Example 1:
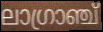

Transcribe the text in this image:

ലാഗ്രാഞ്ച്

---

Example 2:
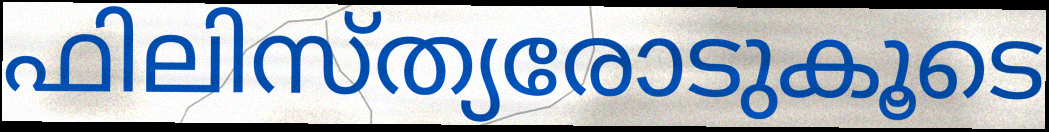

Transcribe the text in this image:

ഫിലിസ്ത്യരോടുകൂടെ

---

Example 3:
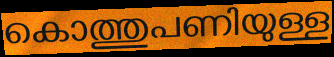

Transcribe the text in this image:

കൊത്തുപണിയുള്ള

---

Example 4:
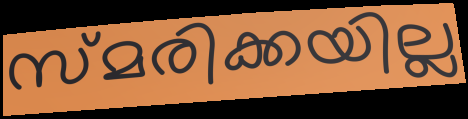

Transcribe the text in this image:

സ്മരിക്കയില്ല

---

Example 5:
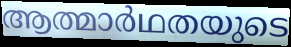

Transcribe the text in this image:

ആത്മാർഥതയുടെ